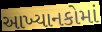
આખ્યાનકોમાં